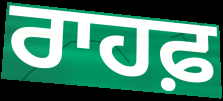
ਰਾਹਫ਼